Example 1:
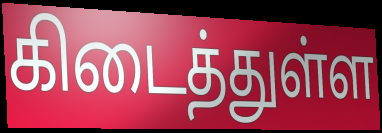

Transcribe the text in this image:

கிடைத்துள்ள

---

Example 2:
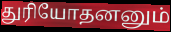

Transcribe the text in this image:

துரியோதனனும்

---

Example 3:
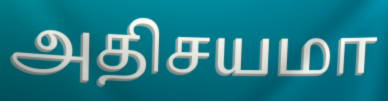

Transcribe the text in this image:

அதிசயமா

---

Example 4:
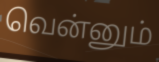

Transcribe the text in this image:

வென்னும்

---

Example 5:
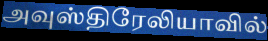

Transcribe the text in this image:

அவுஸ்திரேலியாவில்